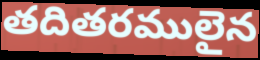
తదితరములైన